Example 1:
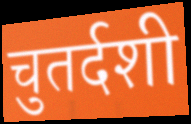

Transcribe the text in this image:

चुतर्दशी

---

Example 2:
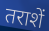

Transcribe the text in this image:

तराशें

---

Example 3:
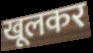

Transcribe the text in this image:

खूलकर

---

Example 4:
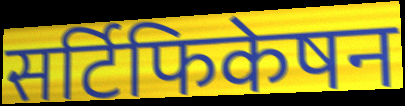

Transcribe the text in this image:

सर्टिफिकेषन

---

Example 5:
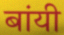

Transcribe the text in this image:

बांयी